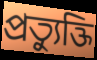
প্রত্যুক্তি